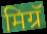
मिग्रॅ